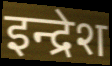
इन्द्रेश